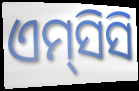
ଏମ୍‌ସିସି